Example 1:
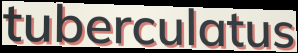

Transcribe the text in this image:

tuberculatus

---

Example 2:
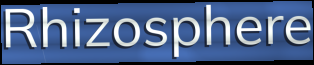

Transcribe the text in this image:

Rhizosphere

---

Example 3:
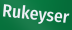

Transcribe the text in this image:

Rukeyser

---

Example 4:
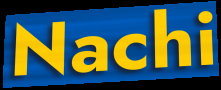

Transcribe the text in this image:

Nachi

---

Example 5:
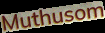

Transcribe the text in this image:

Muthusom